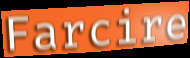
Farcire